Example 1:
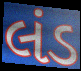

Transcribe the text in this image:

લંડ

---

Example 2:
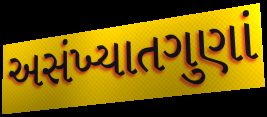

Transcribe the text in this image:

અસંખ્યાતગુણાં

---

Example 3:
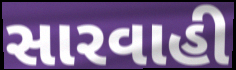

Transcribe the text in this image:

સારવાહી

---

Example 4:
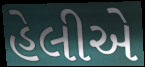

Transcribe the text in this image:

હેલીએ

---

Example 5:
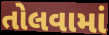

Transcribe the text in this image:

તોલવામાં